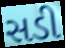
સડી